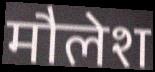
मौलेश